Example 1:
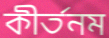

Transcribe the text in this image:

কীর্তনম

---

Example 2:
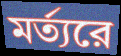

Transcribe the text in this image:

মর্ত্যরে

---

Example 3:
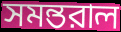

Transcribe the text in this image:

সমন্তরাল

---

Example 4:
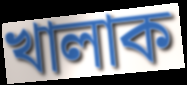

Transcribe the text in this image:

খালাক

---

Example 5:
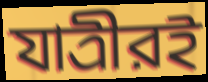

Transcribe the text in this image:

যাত্রীরই